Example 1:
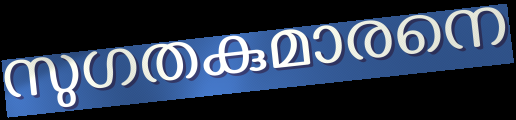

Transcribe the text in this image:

സുഗതകുമാരനെ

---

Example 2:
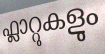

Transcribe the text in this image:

ഫ്ലാറ്റുകളും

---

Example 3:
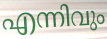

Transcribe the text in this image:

എന്നിവും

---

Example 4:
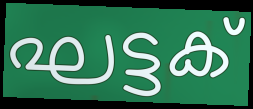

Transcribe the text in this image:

ഘട്ടക്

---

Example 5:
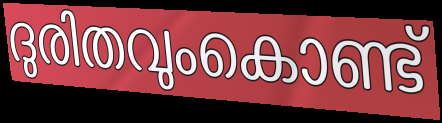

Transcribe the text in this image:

ദുരിതവുംകൊണ്ട്